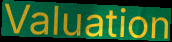
Valuation